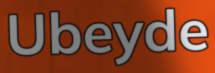
Ubeyde